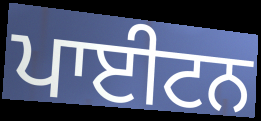
ਪਾਈਟਨ